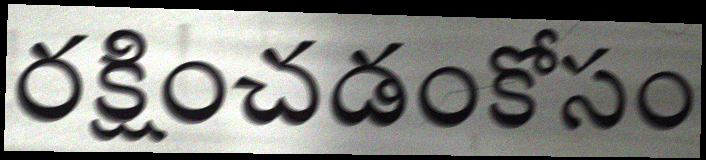
రక్షించడంకోసం